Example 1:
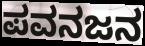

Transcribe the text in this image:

ಪವನಜನ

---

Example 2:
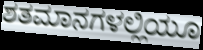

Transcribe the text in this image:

ಶತಮಾನಗಳಲ್ಲಿಯೂ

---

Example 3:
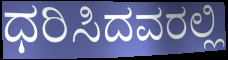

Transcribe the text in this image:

ಧರಿಸಿದವರಲ್ಲಿ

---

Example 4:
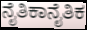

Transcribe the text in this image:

ನೈತಿಕಾನೈತಿಕ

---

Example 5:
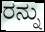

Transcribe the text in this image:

ರನ್ನು